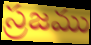
స్రజము